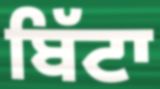
ਬਿੱਟਾ